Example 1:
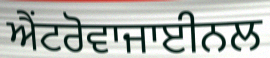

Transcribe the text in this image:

ਐਂਟਰੋਵਾਜਾਈਨਲ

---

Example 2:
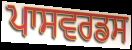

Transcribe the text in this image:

ਪਾਸਵਰਡਸ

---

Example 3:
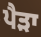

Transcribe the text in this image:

ਪੈੜਾ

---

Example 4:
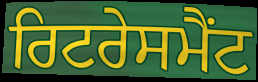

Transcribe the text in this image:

ਰਿਟਰੇਸਮੈਂਟ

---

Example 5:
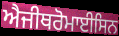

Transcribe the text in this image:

ਐਜੀਥਰੋਮਾਈਸਿਨ